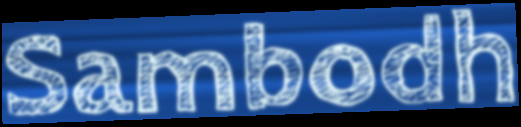
Sambodh